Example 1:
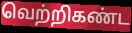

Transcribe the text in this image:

வெற்றிகண்ட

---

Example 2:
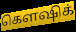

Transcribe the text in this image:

கௌஷிக்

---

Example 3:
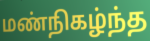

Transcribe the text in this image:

மண்நிகழ்ந்த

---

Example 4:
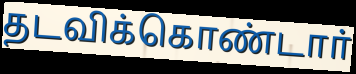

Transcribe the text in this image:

தடவிக்கொண்டார்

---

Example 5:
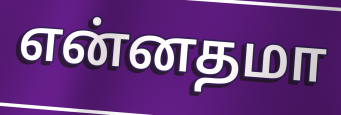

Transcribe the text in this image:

என்னதமா